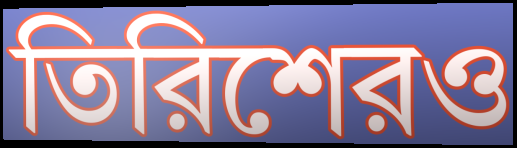
তিরিশেরও